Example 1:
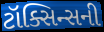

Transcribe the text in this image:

ટૉક્સિન્સની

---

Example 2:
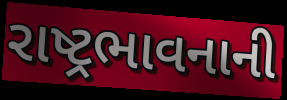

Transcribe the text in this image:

રાષ્ટ્રભાવનાની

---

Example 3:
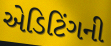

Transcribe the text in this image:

એડિટિંગની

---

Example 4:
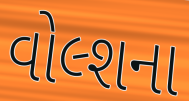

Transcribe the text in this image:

વોલ્શના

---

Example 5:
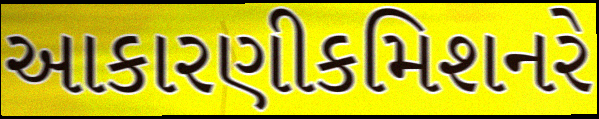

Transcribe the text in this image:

આકારણીકમિશનરે